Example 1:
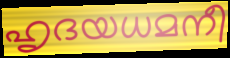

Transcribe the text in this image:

ഹൃദയധമനീ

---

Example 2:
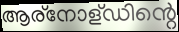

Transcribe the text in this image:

ആര്നോള്ഡിന്റെ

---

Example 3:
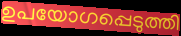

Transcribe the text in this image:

ഉപയോഗപ്പെടുത്തി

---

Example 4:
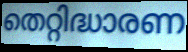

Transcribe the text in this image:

തെറ്റിദ്ധാരണ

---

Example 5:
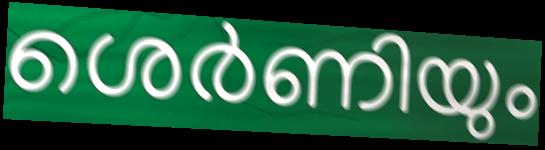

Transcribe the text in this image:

ശെർണിയും